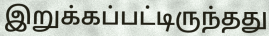
இறுக்கப்பட்டிருந்தது